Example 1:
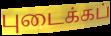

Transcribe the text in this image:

புடைக்கப்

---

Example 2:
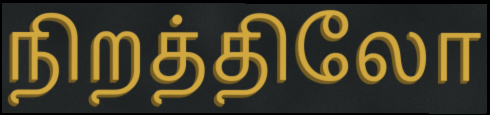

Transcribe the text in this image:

நிறத்திலோ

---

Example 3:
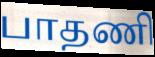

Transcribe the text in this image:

பாதணி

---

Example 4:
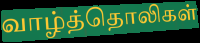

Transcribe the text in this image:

வாழ்த்தொலிகள்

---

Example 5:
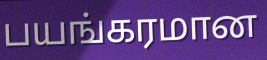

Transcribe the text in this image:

பயங்கரமான